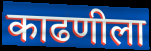
काढणीला